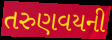
તરુણવયની